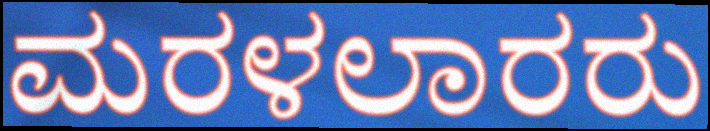
ಮರಳಲಾರರು